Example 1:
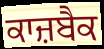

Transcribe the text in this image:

ਕਾਜ਼ਬੈਕ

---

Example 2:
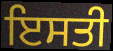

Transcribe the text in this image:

ਇਸਤੀ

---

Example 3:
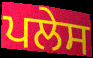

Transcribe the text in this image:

ਪਲੇਸ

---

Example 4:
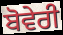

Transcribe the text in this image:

ਬੋਵੇਰੀ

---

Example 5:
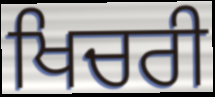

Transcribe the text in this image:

ਖਿਚਰੀ